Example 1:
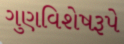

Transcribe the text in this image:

ગુણવિશેષરૂપે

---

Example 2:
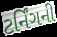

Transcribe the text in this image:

ટર્નિંગની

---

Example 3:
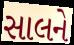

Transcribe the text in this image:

સાલને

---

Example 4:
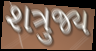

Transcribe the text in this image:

શત્રુજ્ય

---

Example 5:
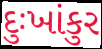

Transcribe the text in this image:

દુઃખાંકુર